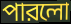
পারলো